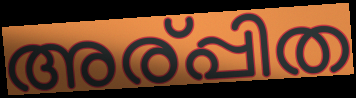
അര്പ്പിത